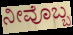
ನೀವೊಬ್ಬ